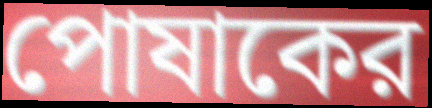
পোষাকের